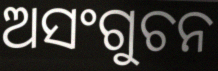
ଅସଂଗୁଚନ